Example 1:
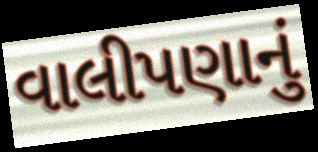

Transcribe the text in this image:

વાલીપણાનું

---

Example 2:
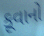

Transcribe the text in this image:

કૂવાનો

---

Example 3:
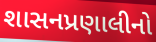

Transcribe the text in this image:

શાસનપ્રણાલીનો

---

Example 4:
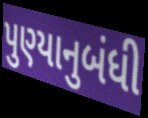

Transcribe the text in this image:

પુણ્યાનુબંધી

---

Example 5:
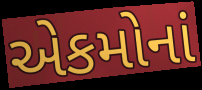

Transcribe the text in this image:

એકમોનાં